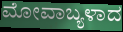
ಮೋವಾಬ್ಯಳಾದ